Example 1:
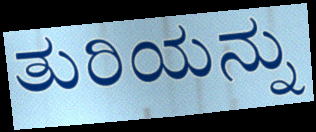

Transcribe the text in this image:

ತುರಿಯನ್ನು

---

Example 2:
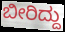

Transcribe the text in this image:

ಬೀರಿದ್ದು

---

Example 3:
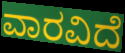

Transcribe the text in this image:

ವಾರವಿದೆ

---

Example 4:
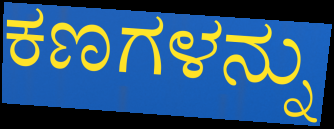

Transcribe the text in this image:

ಕಣಗಳನ್ನು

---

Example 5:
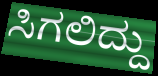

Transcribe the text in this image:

ಸಿಗಲಿದ್ದು